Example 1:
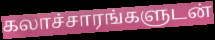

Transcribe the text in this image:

கலாச்சாரங்களுடன்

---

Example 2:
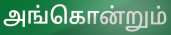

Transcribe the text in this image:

அங்கொன்றும்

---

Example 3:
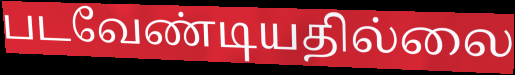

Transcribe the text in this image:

படவேண்டியதில்லை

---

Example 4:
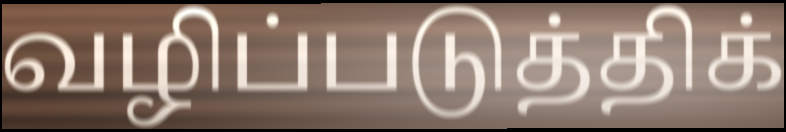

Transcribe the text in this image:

வழிப்படுத்திக்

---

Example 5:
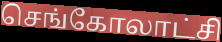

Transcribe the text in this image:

செங்கோலாட்சி